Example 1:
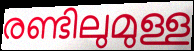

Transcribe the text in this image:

രണ്ടിലുമുള്ള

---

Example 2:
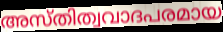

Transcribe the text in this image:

അസ്തിത്വവാദപരമായ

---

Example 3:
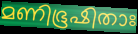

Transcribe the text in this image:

മണിഭൂഷിതാഃ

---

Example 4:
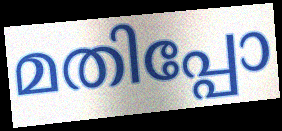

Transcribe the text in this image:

മതിപ്പോ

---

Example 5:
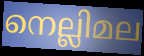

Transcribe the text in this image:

നെല്ലിമല